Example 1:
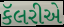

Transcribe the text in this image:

કૅલરીએ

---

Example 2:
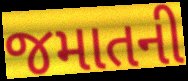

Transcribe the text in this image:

જમાતની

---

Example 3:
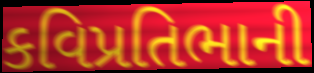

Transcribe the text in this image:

કવિપ્રતિભાની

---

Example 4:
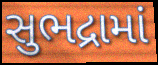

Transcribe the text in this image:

સુભદ્રામાં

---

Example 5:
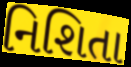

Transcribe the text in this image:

નિશિતા